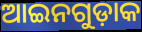
ଆଇନଗୁଡ଼ାକ